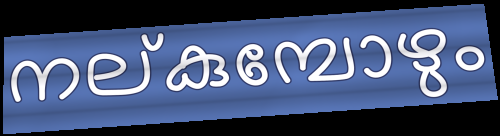
നല്കുമ്പോഴും